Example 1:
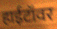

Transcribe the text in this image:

हाईटॉवर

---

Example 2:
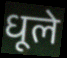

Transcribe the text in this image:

धूले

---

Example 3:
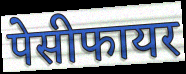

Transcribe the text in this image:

पेसीफायर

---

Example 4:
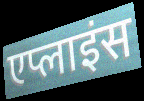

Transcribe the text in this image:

एप्लाइंस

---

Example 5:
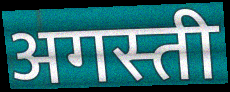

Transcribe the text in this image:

अगस्ती